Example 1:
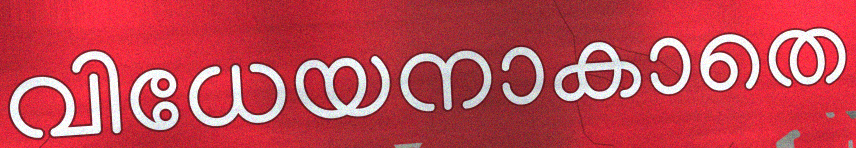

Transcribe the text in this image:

വിധേയനാകാതെ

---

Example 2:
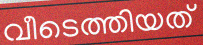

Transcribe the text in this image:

വീടെത്തിയത്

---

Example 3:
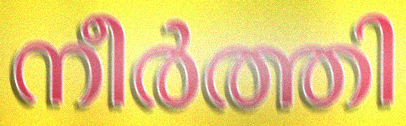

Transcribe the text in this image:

നീർത്തി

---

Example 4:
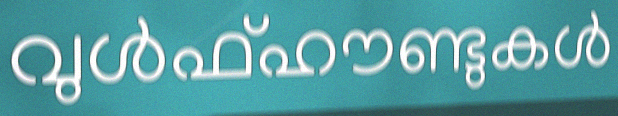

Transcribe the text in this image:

വുൾഫ്ഹൗണ്ടുകൾ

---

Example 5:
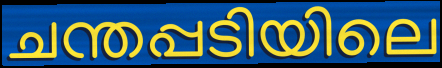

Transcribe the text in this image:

ചന്തപ്പടിയിലെ